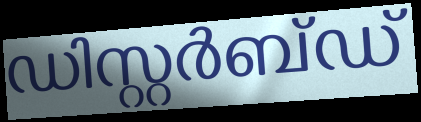
ഡിസ്റ്റർബ്ഡ്